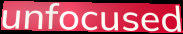
unfocused